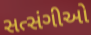
સત્સંગીઓ